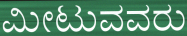
ಮೀಟುವವರು